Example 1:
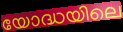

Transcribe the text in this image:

യോദ്ധയിലെ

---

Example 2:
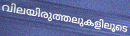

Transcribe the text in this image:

വിലയിരുത്തലുകളിലൂടെ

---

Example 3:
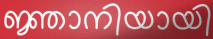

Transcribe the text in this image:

ജ്ഞാനിയായി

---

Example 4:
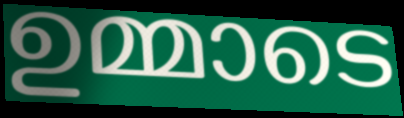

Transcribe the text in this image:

ഉമ്മാടെ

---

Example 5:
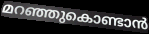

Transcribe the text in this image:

മറഞ്ഞുകൊണ്ടാൻ